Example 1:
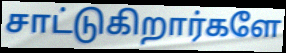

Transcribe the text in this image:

சாட்டுகிறார்களே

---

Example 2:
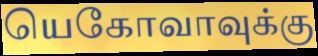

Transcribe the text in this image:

யெகோவாவுக்கு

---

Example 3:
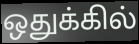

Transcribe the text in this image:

ஒதுக்கில்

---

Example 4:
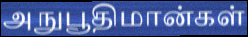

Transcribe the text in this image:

அநுபூதிமான்கள்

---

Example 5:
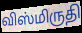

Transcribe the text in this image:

விஸ்மிருதி